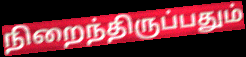
நிறைந்திருப்பதும்